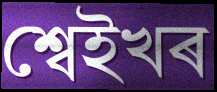
শ্বেইখৰ